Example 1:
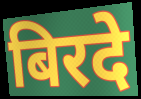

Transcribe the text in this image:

बिरदे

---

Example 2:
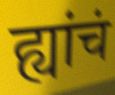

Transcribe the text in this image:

ह्यांचं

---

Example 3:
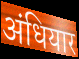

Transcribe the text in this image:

अंधियार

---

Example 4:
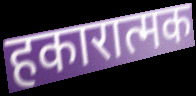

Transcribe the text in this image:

हकारात्मक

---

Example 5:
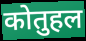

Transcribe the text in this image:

कोतुहल